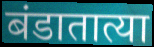
बंडातात्या